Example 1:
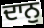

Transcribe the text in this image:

ਦਾਨੁ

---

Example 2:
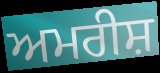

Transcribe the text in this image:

ਅਮਰੀਸ਼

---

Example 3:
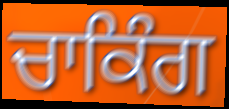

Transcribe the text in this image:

ਚਾਕਿੰਗ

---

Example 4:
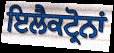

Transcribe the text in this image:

ਇਲੈਕਟ੍ਰੋਨਾਂ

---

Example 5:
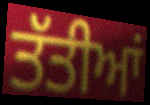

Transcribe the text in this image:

ਤੱਤੀਆਂ